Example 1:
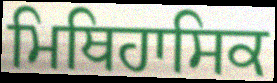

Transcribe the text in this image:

ਮਿਥਿਹਾਸਿਕ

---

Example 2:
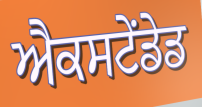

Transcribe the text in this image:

ਐਕਸਟੇਂਡੇਡ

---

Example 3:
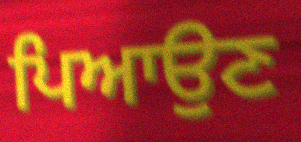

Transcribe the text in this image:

ਪਿਆਉਣ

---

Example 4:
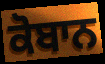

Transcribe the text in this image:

ਕੋਬਾਨ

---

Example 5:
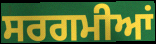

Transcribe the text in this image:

ਸਰਗਮੀਆਂ